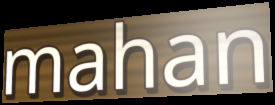
mahan